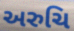
અરુચિ